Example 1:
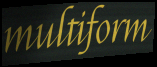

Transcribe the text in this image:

multiform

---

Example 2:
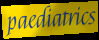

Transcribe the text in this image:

paediatrics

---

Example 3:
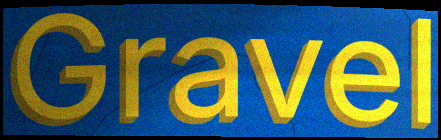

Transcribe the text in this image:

Gravel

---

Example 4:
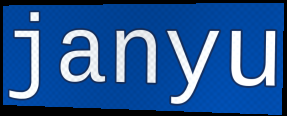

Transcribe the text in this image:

janyu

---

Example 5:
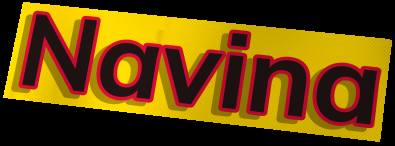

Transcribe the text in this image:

Navina